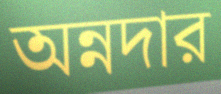
অন্নদার